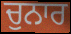
ਚੁਨਾਰ